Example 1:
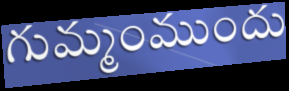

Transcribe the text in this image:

గుమ్మంముందు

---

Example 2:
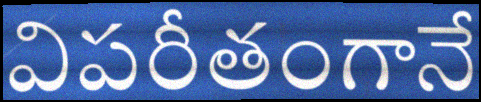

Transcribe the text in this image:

విపరీతంగానే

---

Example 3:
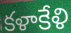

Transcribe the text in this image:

కళాకేళి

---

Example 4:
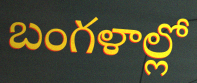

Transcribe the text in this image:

బంగళాల్లో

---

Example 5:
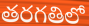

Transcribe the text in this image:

తరగతిలో